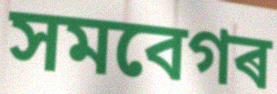
সমবেগৰ